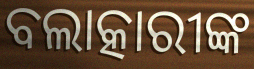
ବଲାତ୍କାରୀଙ୍କ